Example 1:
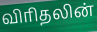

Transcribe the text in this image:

விரிதலின்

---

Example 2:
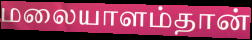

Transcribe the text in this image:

மலையாளம்தான்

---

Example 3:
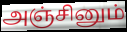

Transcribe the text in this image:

அஞ்சினும்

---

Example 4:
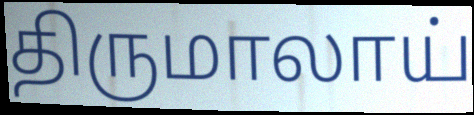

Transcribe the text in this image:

திருமாலாய்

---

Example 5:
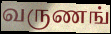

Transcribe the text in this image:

வருணங்